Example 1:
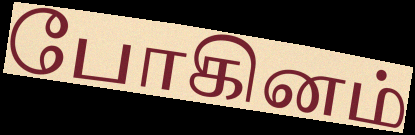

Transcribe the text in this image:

போகினம்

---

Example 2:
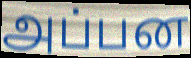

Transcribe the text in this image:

அப்பன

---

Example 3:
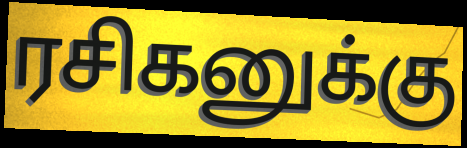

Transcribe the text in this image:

ரசிகனுக்கு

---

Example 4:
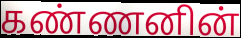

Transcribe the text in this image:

கண்ணனின்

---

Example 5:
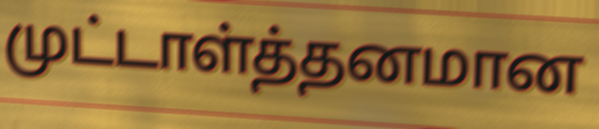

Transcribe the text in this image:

முட்டாள்த்தனமான